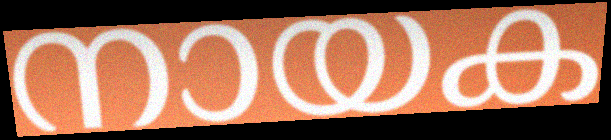
നായക